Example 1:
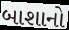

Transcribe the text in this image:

બાશાનો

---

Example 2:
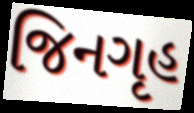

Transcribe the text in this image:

જિનગૃહ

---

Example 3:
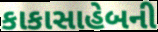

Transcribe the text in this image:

કાકાસાહેબની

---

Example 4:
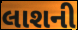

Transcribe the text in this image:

લાશની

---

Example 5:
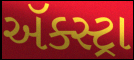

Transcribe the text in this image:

ઍક્સ્ટ્રા